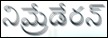
నిమ్రేడేరన్